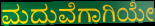
ಮದುವೆಗಾಗಿಯೇ